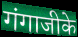
गंगाजीके